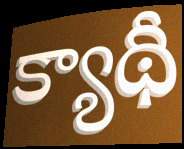
క్యాథీ